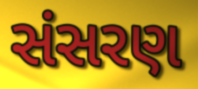
સંસરણ